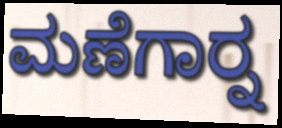
ಮಣೆಗಾರ್‍ನ